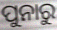
ପୁନାରୁ